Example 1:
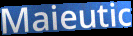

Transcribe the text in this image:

Maieutic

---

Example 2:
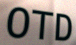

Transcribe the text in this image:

OTD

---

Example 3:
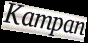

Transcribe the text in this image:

Kampan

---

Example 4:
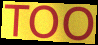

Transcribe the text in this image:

TOO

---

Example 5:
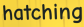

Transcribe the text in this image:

hatching